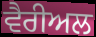
ਵੈਰੀਅਲ